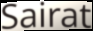
Sairat